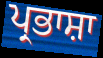
ਪ੍ਰਭਾਸ਼ਾ